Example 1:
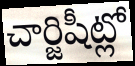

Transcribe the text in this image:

చార్జిషీట్లో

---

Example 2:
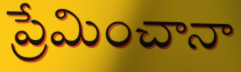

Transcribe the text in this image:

ప్రేమించానా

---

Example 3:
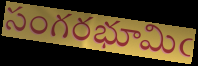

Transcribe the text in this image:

సంగరభూమిఁ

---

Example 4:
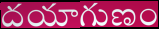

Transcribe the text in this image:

దయాగుణం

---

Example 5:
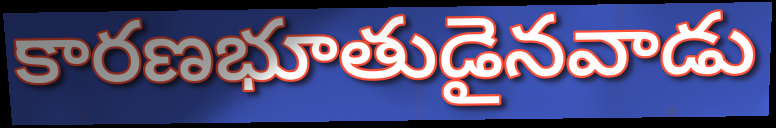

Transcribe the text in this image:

కారణభూతుడైనవాడు